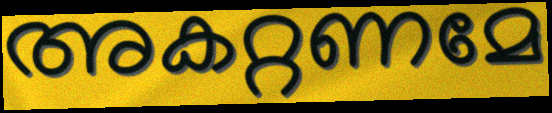
അകറ്റണമേ